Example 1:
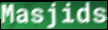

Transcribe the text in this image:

Masjids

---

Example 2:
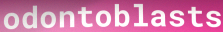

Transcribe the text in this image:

odontoblasts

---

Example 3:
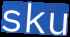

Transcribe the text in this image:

sku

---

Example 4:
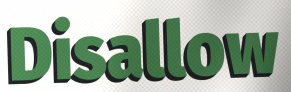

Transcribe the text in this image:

Disallow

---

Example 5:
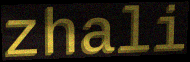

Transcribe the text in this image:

zhali